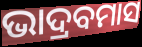
ଭାଦ୍ରବମାସ